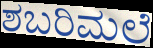
ಶಬರಿಮಲೆ